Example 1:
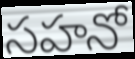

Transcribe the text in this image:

సహనో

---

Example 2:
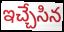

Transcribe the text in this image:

ఇచ్చేసిన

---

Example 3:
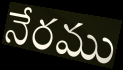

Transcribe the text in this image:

నేరము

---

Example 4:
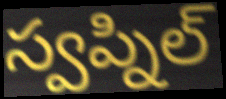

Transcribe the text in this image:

స్వప్నిల్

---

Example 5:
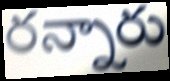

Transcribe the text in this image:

రన్నారు